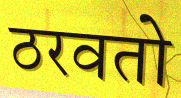
ठरवतो